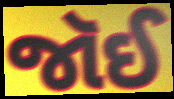
જૉઈ